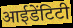
आईडेंटिटी